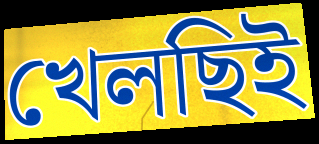
খেলছিই